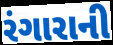
રંગારાની